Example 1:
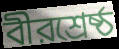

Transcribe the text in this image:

বীরশ্রেষ্ঠ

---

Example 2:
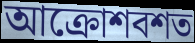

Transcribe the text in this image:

আক্রোশবশত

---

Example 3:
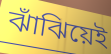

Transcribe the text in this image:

ঝাঁঝিয়েই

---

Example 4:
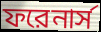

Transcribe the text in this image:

ফরেনার্স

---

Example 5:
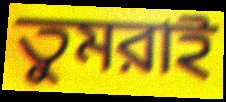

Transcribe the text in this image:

তুমরাই